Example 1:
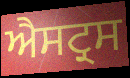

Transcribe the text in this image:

ਐਸਟ੍ਰਸ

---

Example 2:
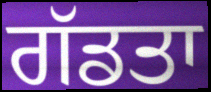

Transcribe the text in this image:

ਗੱਡਤਾ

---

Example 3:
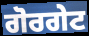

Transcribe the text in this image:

ਗੋਰਗੇਟ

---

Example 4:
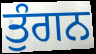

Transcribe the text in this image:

ਤੁੰਗਨ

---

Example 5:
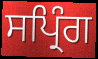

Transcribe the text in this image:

ਸਪ੍ਰਿੰਗ